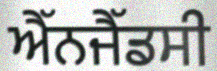
ਐੱਨਜੈੱਡਸੀ